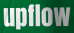
upflow